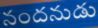
నందనుడు